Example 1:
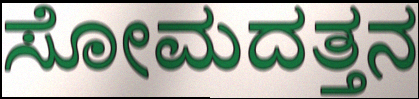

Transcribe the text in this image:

ಸೋಮದತ್ತನ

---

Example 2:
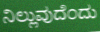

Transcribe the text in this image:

ನಿಲ್ಲುವುದೆಂದು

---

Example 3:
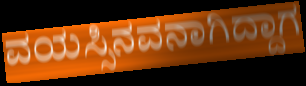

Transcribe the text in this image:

ವಯಸ್ಸಿನವನಾಗಿದ್ದಾಗ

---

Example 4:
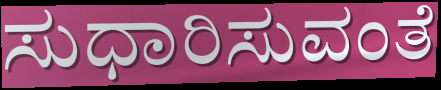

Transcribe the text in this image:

ಸುಧಾರಿಸುವಂತೆ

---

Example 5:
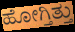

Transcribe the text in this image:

ಹೋಗ್ತಿತ್ತು